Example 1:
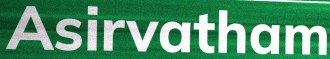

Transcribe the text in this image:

Asirvatham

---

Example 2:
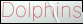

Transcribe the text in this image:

Dolphins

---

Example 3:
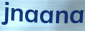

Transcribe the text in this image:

jnaana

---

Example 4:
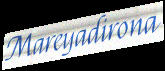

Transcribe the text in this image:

Mareyadirona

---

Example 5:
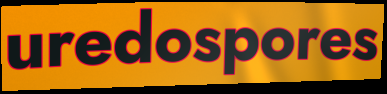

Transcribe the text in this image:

uredospores